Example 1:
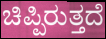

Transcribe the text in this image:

ಚಿಪ್ಪಿರುತ್ತದೆ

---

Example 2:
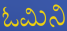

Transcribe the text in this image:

ಓಮಿನಿ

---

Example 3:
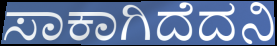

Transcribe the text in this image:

ಸಾಕಾಗಿದೆದನಿ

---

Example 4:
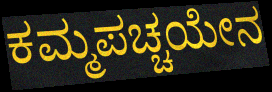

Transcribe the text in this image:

ಕಮ್ಮಪಚ್ಚಯೇನ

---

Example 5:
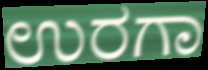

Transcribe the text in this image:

ಉರಗಾ